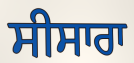
ਸੀਸਾਰਾ